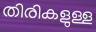
തിരികളുള്ള